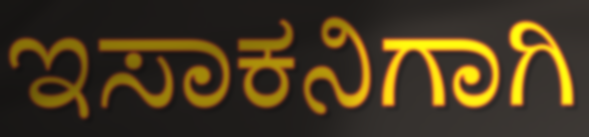
ಇಸಾಕನಿಗಾಗಿ